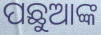
ପଛୁଆଙ୍କ